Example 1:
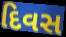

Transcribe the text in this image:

દિવસ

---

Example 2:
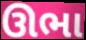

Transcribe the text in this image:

ઊભા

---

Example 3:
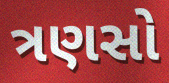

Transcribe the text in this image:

ત્રણસો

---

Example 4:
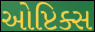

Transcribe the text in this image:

ઓપ્ટિક્સ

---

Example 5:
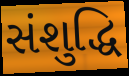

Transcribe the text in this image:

સંશુદ્ધિ